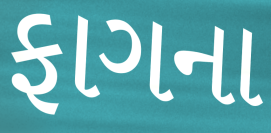
ફાગના